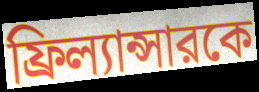
ফ্রিল্যান্সারকে